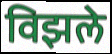
विझले